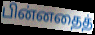
பின்னதைத்